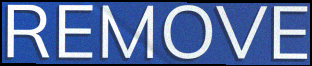
REMOVE